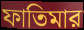
ফাতিমার